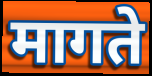
मागते